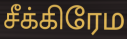
சீக்கிரேம